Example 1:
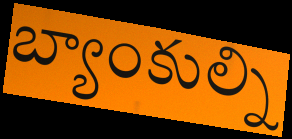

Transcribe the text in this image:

బ్యాంకుల్ని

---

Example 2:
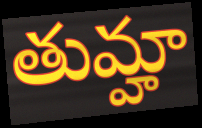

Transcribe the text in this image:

తుమ్హా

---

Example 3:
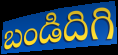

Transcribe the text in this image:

బండిదిగి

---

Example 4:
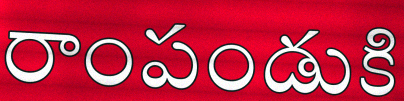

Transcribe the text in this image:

రాంపండుకి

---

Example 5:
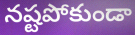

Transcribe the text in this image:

నష్టపోకుండా